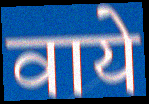
वाये